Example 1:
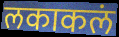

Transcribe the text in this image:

लकाकलं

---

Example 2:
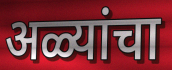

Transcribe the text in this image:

अळ्यांचा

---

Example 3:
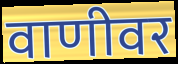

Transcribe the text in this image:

वाणीवर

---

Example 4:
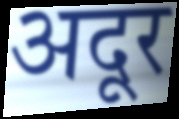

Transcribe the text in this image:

अदूर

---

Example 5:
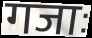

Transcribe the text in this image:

गजाः